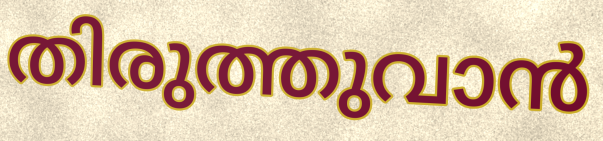
തിരുത്തുവാൻ